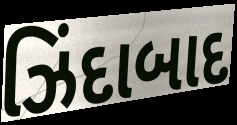
ઝિંદાબાદ